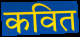
कवित